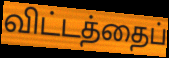
விட்டத்தைப்